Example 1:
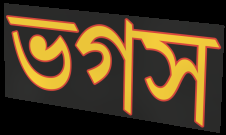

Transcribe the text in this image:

ভগস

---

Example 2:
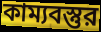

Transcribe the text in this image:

কাম্যবস্তুর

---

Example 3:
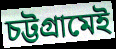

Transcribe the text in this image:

চট্টগ্রামেই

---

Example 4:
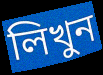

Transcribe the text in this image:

লিখুন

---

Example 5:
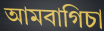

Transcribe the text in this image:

আমবাগিচা